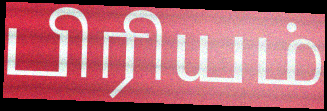
பிரியம்